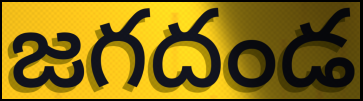
జగదండ